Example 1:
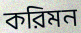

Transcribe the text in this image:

করিমন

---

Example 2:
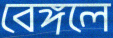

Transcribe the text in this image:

বেঙ্গলে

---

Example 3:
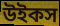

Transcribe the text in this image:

উইকস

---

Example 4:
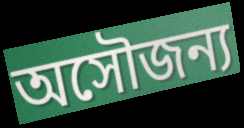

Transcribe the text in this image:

অসৌজন্য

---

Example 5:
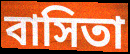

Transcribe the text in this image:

বাসিতা